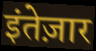
इंतेज़ार